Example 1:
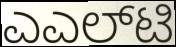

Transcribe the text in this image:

ಎಎಲ್‌ಟಿ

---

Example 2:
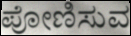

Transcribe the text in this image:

ಪೋಣಿಸುವ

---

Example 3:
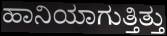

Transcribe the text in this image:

ಹಾನಿಯಾಗುತ್ತಿತ್ತು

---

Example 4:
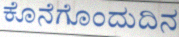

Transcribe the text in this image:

ಕೊನೆಗೊಂದುದಿನ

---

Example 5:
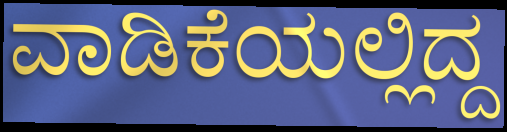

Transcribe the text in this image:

ವಾಡಿಕೆಯಲ್ಲಿದ್ದ